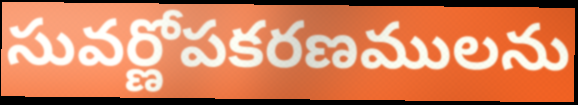
సువర్ణోపకరణములను